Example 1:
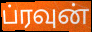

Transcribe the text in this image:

ப்ரவுன்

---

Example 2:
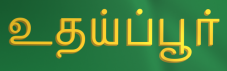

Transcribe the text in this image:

உதய்ப்பூர்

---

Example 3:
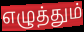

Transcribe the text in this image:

எழுத்தும்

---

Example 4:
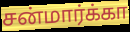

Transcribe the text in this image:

சன்மார்க்கா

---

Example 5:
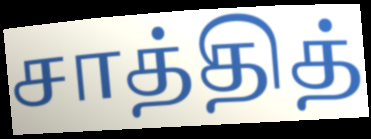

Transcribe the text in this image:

சாத்தித்